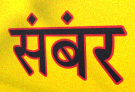
संबंर